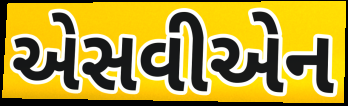
એસવીએન